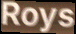
Roys